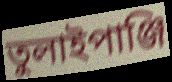
তুলাইপাঞ্জি